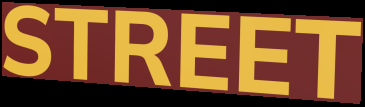
STREET